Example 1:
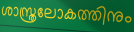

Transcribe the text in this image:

ശാസ്ത്രലോകത്തിനും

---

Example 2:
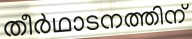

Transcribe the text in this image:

തീർഥാടനത്തിന്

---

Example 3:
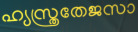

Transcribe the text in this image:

ഹ്യസ്ത്രതേജസാ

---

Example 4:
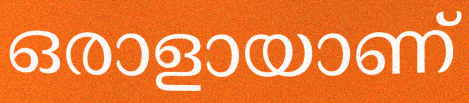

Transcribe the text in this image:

ഒരാളായാണ്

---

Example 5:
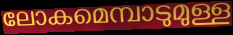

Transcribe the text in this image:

ലോകമെമ്പാടുമുള്ള